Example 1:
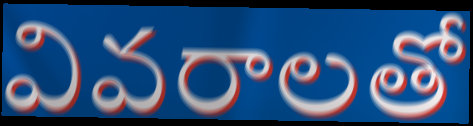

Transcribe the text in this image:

వివరాలతో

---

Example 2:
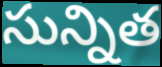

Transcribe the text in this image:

సున్నిత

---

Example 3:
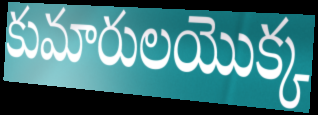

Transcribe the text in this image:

కుమారులయొక్క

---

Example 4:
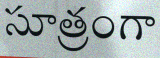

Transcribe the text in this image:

సూత్రంగా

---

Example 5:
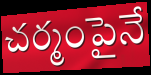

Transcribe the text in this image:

చర్మంపైనే